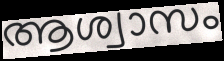
ആശ്വാസം